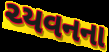
ચ્યવનના